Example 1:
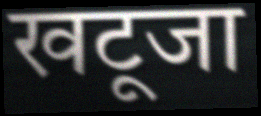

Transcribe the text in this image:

खटूजा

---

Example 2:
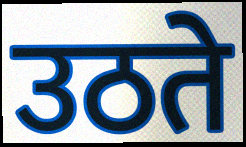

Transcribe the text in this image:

उठते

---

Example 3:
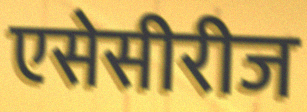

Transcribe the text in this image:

एसेसीरीज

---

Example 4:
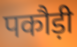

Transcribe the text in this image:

पकौड़ी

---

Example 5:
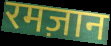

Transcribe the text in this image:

रमज़ान